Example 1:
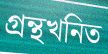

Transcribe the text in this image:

গ্ৰন্থখনিত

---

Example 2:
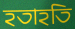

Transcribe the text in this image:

হতাহতি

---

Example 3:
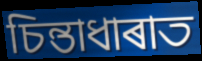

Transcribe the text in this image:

চিন্তাধাৰাত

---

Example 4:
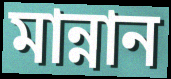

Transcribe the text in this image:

মান্নান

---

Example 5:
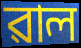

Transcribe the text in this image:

ৱাল